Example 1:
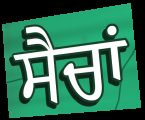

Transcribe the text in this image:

ਸੈਚਾਂ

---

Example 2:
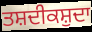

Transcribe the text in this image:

ਤਸ਼ਦੀਕਸ਼ੁਦਾ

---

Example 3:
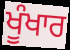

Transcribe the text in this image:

ਖੂੰਖਾਰ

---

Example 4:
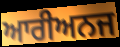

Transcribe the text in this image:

ਆਰੀਅਨਜ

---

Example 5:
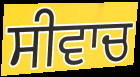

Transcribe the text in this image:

ਸੀਵਾਚ